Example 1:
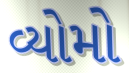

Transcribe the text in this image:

વ્યોમો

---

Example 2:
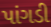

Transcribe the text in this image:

પાંગડી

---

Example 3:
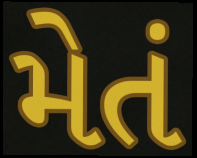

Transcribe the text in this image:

મેતં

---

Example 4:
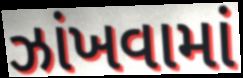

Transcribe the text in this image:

ઝાંખવામાં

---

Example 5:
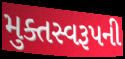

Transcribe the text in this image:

મુક્તસ્વરૂપની